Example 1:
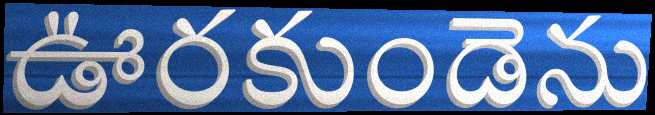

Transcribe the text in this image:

ఊరకుండెను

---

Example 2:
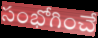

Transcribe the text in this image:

సంభోగించే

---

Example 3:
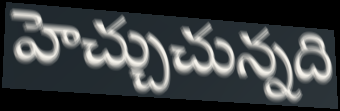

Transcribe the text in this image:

హెచ్చుచున్నది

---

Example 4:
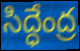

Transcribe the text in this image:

సిద్ధేంద్ర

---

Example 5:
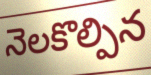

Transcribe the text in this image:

నెలకొల్పిన